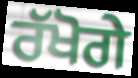
ਰੱਖੋਗੇ